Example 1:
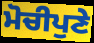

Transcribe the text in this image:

ਮੋਚੀਪੁਣੇ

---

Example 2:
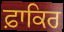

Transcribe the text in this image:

ਫ਼ਾਕਿਰ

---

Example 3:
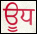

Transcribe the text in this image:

ਊਧ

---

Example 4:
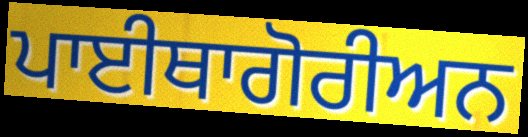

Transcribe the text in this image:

ਪਾਈਥਾਗੋਰੀਅਨ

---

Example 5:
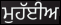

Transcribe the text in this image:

ਮੁਹੱਈਅ